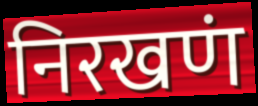
निरखणं